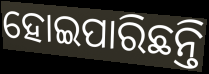
ହୋଇପାରିଛନ୍ତି